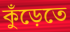
কুঁড়েতে